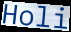
Holi